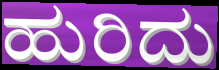
ಹುರಿದು